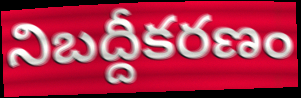
నిబద్దీకరణం